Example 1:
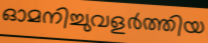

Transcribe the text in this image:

ഓമനിച്ചുവളർത്തിയ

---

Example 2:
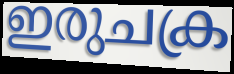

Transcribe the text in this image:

ഇരുചക്ര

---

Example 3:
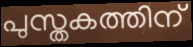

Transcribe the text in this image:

പുസ്തകത്തിന്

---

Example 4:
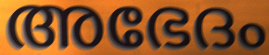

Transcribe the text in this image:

അഭേദം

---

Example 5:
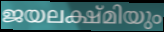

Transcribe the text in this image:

ജയലക്ഷ്മിയും